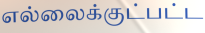
எல்லைக்குட்பட்ட